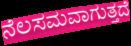
ನೆಲಸಮವಾಗುತ್ತದೆ